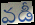
వడీ